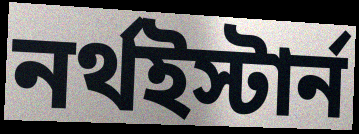
নর্থইস্টার্ন